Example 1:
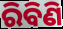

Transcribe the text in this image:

ରିବିଣି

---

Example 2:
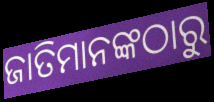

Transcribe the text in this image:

ଜାତିମାନଙ୍କଠାରୁ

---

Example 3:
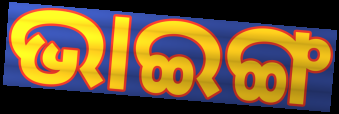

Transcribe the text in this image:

ଭାଇଙ୍ଗ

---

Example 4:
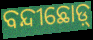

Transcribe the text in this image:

ବନ୍ଦୀଛୋଡ଼୍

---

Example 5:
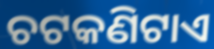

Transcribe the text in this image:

ଚଟକଣିଟାଏ